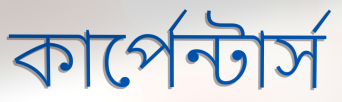
কার্পেন্টার্স